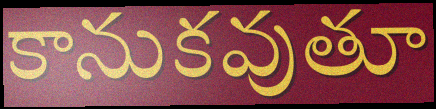
కానుకవుతూ